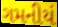
ગમનીયં